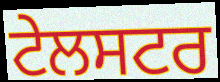
ਟੇਲਸਟਰ